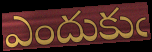
ఎందుకుఁ